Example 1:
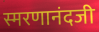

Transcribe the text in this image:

स्मरणानंदजी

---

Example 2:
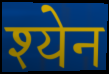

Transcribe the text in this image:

श्येन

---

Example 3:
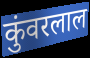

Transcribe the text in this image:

कुंवरलाल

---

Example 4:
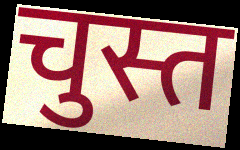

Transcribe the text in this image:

चुस्त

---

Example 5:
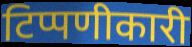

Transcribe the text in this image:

टिप्पणीकारी